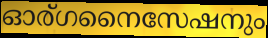
ഓര്ഗനൈസേഷനും